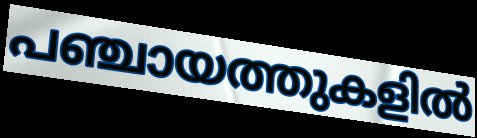
പഞ്ചായത്തുകളിൽ